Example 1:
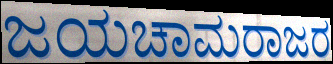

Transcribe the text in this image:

ಜಯಚಾಮರಾಜರ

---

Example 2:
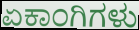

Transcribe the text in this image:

ಏಕಾಂಗಿಗಳು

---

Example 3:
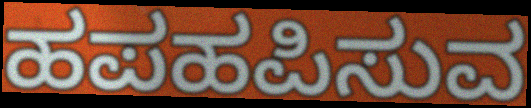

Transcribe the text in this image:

ಹಪಹಪಿಸುವ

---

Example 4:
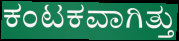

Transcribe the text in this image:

ಕಂಟಕವಾಗಿತ್ತು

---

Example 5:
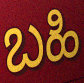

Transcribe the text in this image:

ಬಹಿ